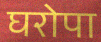
घरोपा